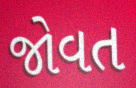
જોવત